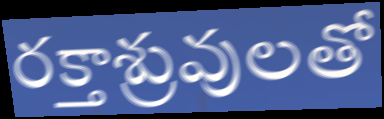
రక్తాశ్రువులతో